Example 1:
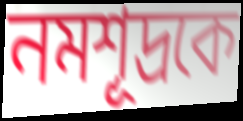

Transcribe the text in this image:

নমশূদ্রকে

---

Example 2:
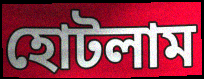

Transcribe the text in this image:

হোটলাম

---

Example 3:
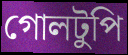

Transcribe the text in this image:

গোলটুপি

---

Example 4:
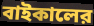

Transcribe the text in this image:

বাইকালের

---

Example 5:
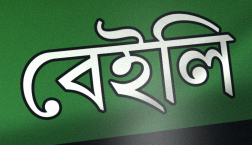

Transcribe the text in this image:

বেইলি